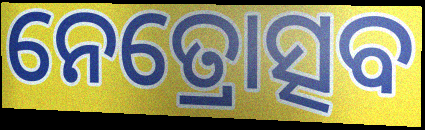
ନେତ୍ରୋତ୍ସବ